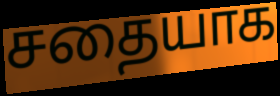
சதையாக